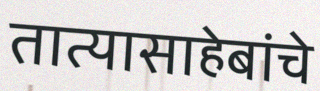
तात्यासाहेबांचे